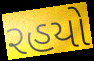
રહયો